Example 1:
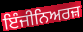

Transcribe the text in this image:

ਇੰਜੀਨਿਅਰਜ਼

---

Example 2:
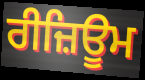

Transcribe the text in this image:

ਰੀਜ਼ਿਊਮ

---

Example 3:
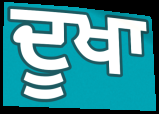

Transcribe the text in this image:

ਦੂਖਾ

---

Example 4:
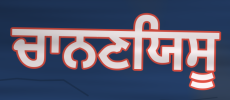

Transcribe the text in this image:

ਚਾਨਣਯਿਸੂ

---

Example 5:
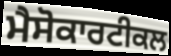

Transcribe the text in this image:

ਮੈਸੋਕਾਰਟੀਕਲ